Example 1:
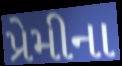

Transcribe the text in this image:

પ્રેમીના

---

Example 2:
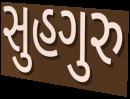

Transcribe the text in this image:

સુહગુરુ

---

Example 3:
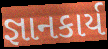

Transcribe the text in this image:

જ્ઞાનકાર્ય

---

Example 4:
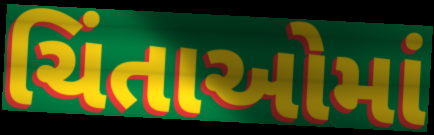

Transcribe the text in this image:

ચિંતાઓમાં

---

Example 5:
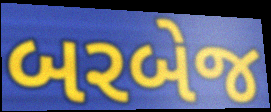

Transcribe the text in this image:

બરબેજ